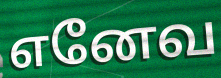
எனேவ